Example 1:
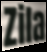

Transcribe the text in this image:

Zila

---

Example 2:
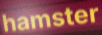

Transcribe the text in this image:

hamster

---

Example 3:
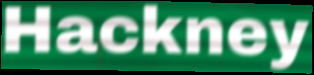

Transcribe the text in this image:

Hackney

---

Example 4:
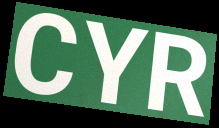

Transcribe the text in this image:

CYR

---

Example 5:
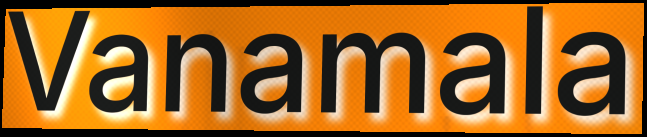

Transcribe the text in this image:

Vanamala